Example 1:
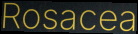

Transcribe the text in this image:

Rosacea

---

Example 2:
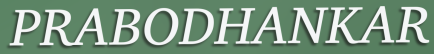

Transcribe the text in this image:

PRABODHANKAR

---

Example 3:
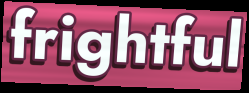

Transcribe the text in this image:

frightful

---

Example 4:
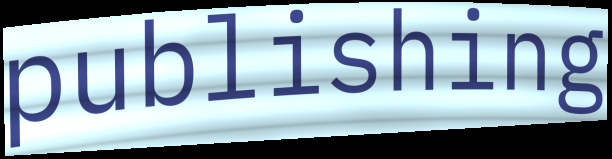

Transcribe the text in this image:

publishing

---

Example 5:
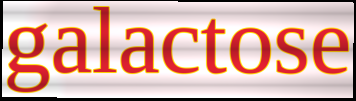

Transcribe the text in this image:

galactose